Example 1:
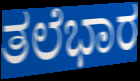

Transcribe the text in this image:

ತಲೆಭಾರ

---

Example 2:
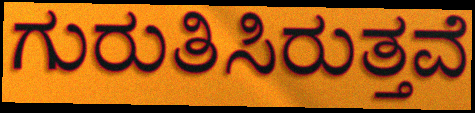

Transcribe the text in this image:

ಗುರುತಿಸಿರುತ್ತವೆ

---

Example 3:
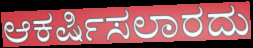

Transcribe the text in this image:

ಆಕರ್ಷಿಸಲಾರದು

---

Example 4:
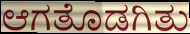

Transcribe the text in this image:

ಆಗತೊಡಗಿತು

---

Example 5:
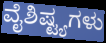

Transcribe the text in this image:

ವೈಶಿಷ್ಟ್ಯಗಳು